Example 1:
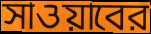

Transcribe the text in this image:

সাওয়াবের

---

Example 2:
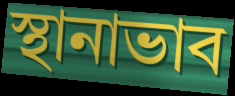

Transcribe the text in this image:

স্থানাভাব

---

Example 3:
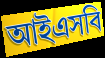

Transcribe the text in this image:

আইএসবি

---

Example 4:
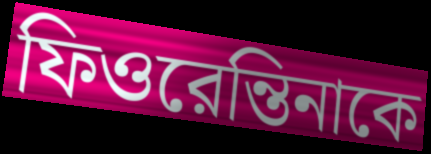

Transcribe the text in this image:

ফিওরেন্তিনাকে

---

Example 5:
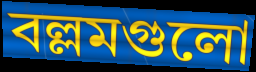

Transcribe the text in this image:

বল্লমগুলো